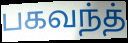
பகவந்த்